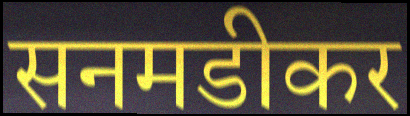
सनमडीकर